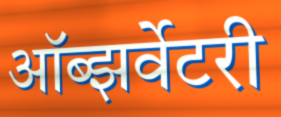
ऑब्झर्वेटरी